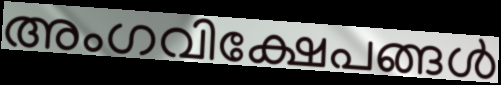
അംഗവിക്ഷേപങ്ങൾ